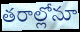
తరాల్లోనూ